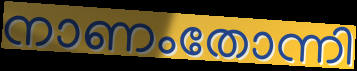
നാണംതോന്നി